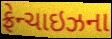
ફ્રેન્ચાઇઝના